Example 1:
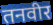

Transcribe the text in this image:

तनवीर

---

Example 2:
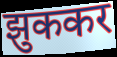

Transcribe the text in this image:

झुककर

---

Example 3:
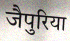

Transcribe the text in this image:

जैपुरिया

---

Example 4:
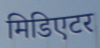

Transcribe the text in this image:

मिडिएटर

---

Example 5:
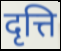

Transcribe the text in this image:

दृत्ति